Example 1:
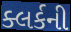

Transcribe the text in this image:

ક્લર્કની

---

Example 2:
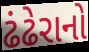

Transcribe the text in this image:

ઢંઢેરાનો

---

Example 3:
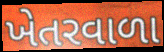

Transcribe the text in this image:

ખેતરવાળા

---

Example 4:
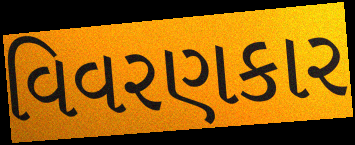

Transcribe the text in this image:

વિવરણકાર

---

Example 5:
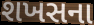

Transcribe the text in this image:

શખસના